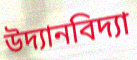
উদ্যানবিদ্যা